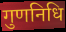
गुणनिधि